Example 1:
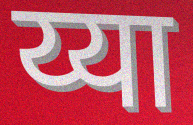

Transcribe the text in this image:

य्या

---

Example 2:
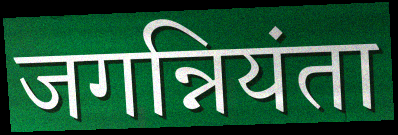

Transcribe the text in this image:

जगन्नियंता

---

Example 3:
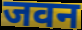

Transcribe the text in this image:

जवन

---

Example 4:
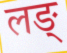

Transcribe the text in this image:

लङ्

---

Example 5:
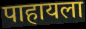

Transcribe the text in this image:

पाहायला